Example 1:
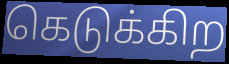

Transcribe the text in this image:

கெடுக்கிற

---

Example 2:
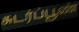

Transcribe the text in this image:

சுடர்ப்பூண்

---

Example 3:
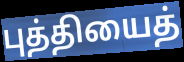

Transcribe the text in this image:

புத்தியைத்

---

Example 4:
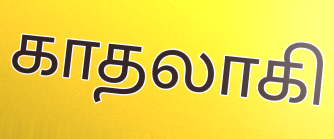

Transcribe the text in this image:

காதலாகி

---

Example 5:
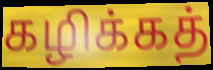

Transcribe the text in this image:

கழிக்கத்